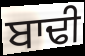
ਬਾਢੀ